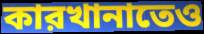
কারখানাতেও